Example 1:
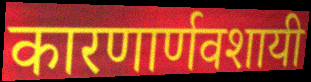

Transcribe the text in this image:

कारणार्णवशायी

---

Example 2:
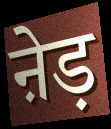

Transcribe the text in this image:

ऩेड़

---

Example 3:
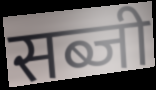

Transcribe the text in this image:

सब्जी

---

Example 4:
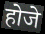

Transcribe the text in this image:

होजे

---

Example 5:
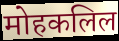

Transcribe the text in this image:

मोहकलिल